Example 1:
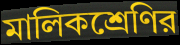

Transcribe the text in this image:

মালিকশ্রেণির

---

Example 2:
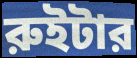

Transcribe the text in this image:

রুইটার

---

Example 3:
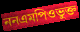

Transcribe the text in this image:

ননএমপিওভুক্ত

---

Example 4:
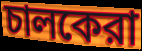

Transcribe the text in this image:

চালকেরা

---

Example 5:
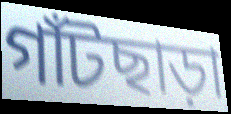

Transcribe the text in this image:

গাঁটছাড়া